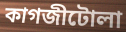
কাগজীটোলা